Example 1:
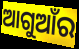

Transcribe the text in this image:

ଆଗୁଆଁର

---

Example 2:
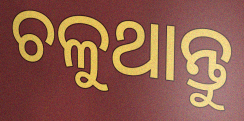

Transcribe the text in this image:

ଚଳୁଥାନ୍ତୁ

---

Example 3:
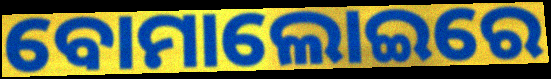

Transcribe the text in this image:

ବୋମାଲୋଇରେ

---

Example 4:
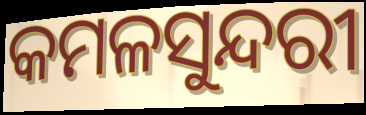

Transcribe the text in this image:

କମଳସୁନ୍ଦରୀ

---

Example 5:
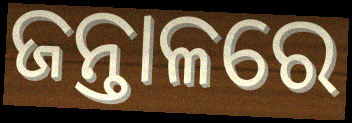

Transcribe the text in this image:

ଜନ୍ତାଳରେ